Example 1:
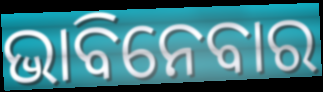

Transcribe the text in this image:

ଭାବିନେବାର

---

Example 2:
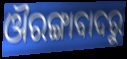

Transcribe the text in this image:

ଔରଙ୍ଗାବାଦରୁ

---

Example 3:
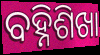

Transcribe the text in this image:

ବହ୍ନିଶିଖା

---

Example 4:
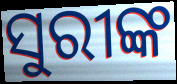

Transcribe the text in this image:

ସୁରୀଙ୍କ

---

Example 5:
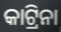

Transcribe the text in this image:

କାଟ୍ରିନା